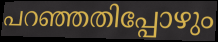
പറഞ്ഞതിപ്പോഴും